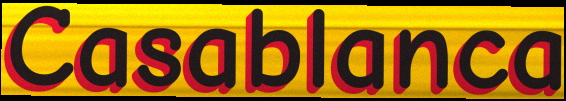
Casablanca